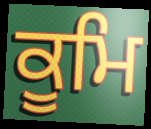
ਕੂਮਿ